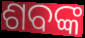
ଶବଙ୍କ